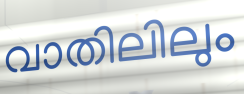
വാതിലിലും